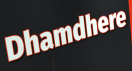
Dhamdhere